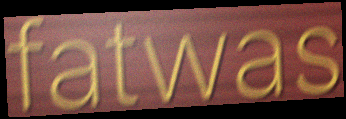
fatwas